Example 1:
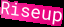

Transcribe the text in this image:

Riseup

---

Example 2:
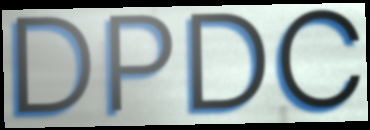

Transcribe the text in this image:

DPDC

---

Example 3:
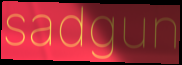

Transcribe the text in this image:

sadgun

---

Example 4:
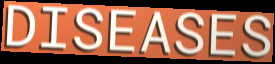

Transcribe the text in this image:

DISEASES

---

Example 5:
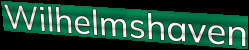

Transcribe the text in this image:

Wilhelmshaven